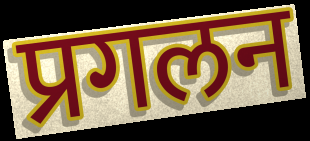
प्रगलन